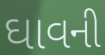
ઘાવની